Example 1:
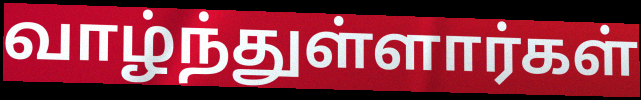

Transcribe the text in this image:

வாழ்ந்துள்ளார்கள்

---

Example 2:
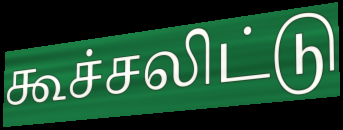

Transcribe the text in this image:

கூச்சலிட்டு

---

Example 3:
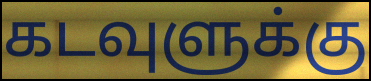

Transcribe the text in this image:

கடவுளுக்கு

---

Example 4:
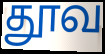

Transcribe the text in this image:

தூவ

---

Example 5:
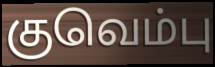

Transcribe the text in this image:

குவெம்பு